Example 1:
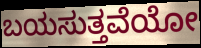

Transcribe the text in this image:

ಬಯಸುತ್ತವೆಯೋ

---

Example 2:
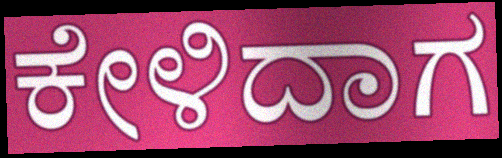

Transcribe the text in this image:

ಕೇಳಿದಾಗ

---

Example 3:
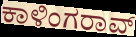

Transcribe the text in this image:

ಕಾಳಿಂಗರಾವ್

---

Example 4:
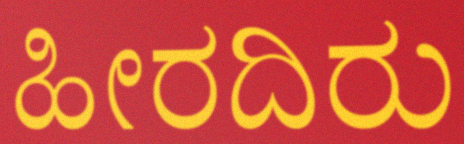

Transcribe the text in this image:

ಹೀರದಿರು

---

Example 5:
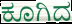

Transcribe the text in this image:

ಕೂಗಿದ